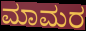
ಮಾಮರ